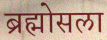
ब्रह्मोसला